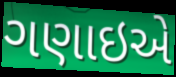
ગણાઇએ